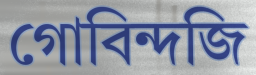
গোবিন্দজি